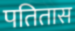
पतितास